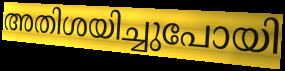
അതിശയിച്ചുപോയി